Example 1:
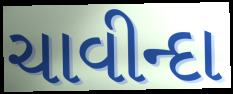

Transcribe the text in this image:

ચાવીન્દા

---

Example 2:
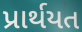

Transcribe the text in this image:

પ્રાર્થયત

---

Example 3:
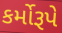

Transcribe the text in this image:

કર્મોરૂપે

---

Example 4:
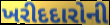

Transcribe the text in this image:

ખરીદદારોની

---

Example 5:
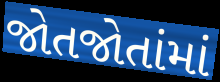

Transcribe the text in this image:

જોતજોતાંમાં